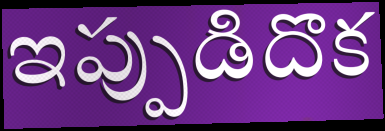
ఇప్పుడిదొక